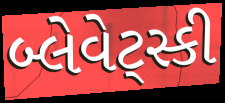
બ્લેવેટ્સ્કી